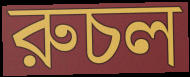
রুচল